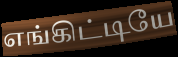
எங்கிட்டியே